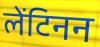
लेंटिनन